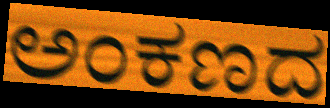
ಅಂಕಣದ